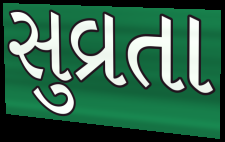
સુવ્રતા